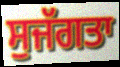
ਸੁਜੱਗਤਾ